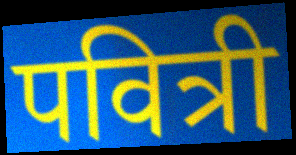
पवित्री